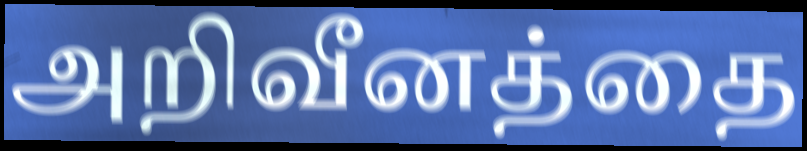
அறிவீனத்தை